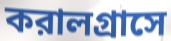
করালগ্রাসে